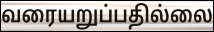
வரையறுப்பதில்லை